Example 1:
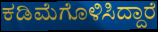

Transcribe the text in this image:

ಕಡಿಮೆಗೊಳಿಸಿದ್ದಾರೆ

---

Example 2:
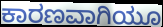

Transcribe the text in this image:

ಕಾರಣವಾಗಿಯೂ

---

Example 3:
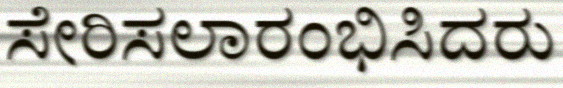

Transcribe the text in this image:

ಸೇರಿಸಲಾರಂಭಿಸಿದರು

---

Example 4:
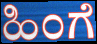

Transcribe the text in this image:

ಹಿಂಗೆ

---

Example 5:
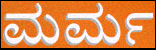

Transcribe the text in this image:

ಮರ್ಮ